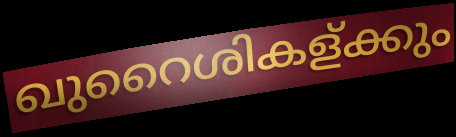
ഖുറൈശികള്ക്കും